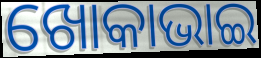
ଖୋକାଭାଇ